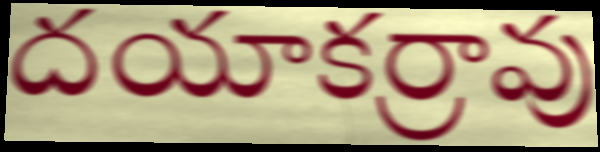
దయాకర్రావు